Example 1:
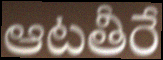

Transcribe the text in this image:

ఆటతీరే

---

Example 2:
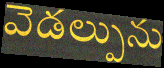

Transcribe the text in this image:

వెడల్పును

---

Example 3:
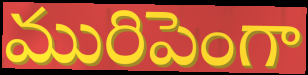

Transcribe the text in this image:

మురిపెంగా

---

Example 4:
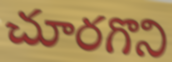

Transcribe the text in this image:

చూరగొని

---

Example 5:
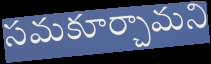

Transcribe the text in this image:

సమకూర్చామని